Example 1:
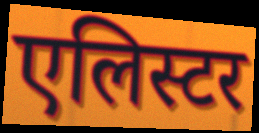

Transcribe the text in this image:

एलिस्टर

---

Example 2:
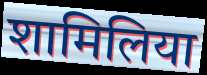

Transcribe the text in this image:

शामिलिया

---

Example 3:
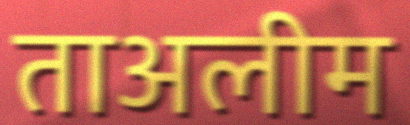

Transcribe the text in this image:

ताअलीम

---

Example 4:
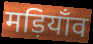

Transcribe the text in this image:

मड़ियाँव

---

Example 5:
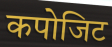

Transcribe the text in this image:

कपोजिट